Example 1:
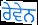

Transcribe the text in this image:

ਰੇਵੇਨ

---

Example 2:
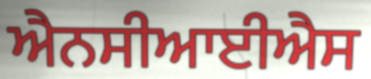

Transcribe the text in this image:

ਐਨਸੀਆਈਐਸ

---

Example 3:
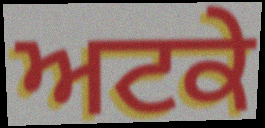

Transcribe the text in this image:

ਅਟਕੇ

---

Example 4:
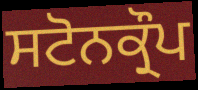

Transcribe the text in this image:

ਸਟੋਨਕ੍ਰੌਪ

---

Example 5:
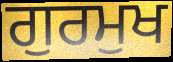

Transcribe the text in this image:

ਗੁਰਮੁਖ